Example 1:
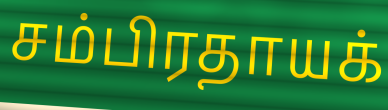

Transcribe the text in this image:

சம்பிரதாயக்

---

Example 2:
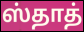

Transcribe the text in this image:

ஸ்தாத்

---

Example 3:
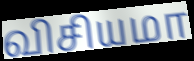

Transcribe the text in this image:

விசியமா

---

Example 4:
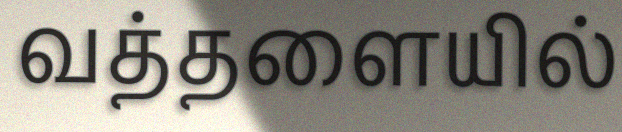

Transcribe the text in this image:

வத்தளையில்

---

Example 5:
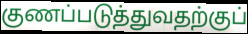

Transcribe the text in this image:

குணப்படுத்துவதற்குப்